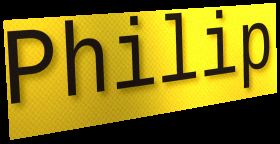
Philip